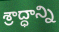
శ్రాద్ధాన్ని